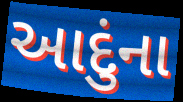
આદુંના